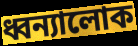
ধ্বন্যালোক